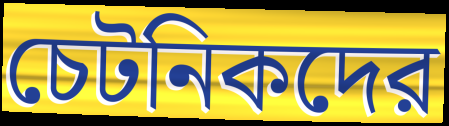
চেটনিকদের